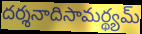
దర్శనాదిసామర్థ్యమ్